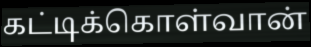
கட்டிக்கொள்வான்